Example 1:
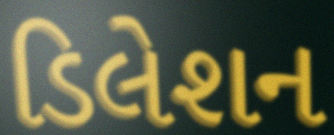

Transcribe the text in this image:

ડિલેશન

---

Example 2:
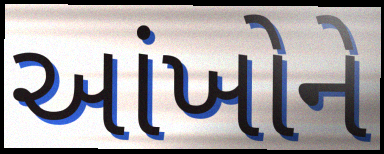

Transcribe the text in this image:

આંખોને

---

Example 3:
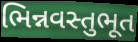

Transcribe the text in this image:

ભિન્નવસ્તુભૂત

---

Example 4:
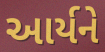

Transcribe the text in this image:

આર્યને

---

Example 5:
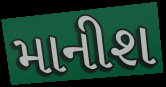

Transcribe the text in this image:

માનીશ